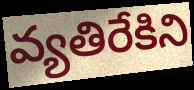
వ్యతిరేకిని